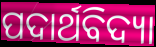
ପଦାର୍ଥବିଦ୍ୟା